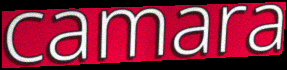
camara